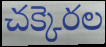
చక్కెరల